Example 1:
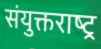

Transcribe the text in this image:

संयुक्तराष्ट्र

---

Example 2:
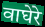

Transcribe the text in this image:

वाघेरे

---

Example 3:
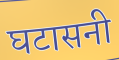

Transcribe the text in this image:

घटासनी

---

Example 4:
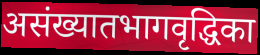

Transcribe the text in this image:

असंख्यातभागवृद्धिका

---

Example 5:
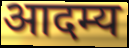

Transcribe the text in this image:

आदम्य